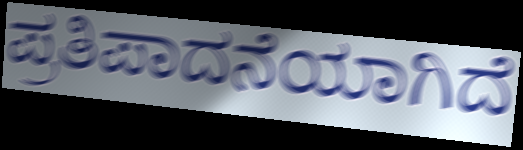
ಪ್ರತಿಪಾದನೆಯಾಗಿದೆ